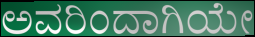
ಅವರಿಂದಾಗಿಯೇ